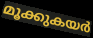
മൂക്കുകയർ